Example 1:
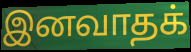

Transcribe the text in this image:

இனவாதக்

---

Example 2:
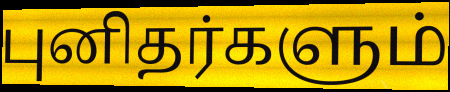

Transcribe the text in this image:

புனிதர்களும்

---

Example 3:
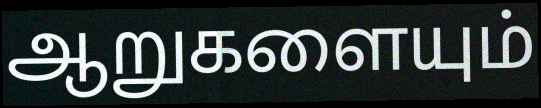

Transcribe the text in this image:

ஆறுகளையும்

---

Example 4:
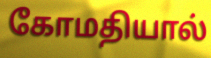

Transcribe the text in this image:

கோமதியால்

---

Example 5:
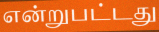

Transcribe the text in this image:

என்றுபட்டது